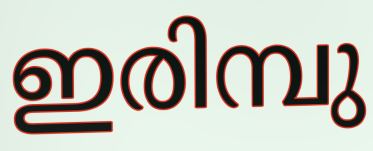
ഇരിമ്പു